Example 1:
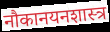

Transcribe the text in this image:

नौकानयनशास्त्र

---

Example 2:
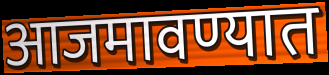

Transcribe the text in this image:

आजमावण्यात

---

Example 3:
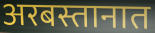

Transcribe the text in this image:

अरबस्तानात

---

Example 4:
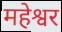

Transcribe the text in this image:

महेश्वर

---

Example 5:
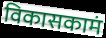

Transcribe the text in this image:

विकासकामं